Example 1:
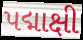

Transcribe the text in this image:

પદ્માક્ષી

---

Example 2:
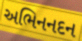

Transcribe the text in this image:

અભિનનદન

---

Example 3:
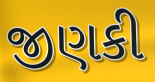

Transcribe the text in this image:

જીણકી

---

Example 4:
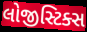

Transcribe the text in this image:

લોજીસ્ટિક્સ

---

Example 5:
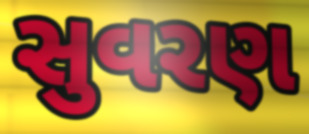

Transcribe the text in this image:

સુવરણ